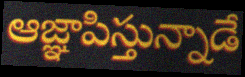
ఆజ్ఞాపిస్తున్నాడే